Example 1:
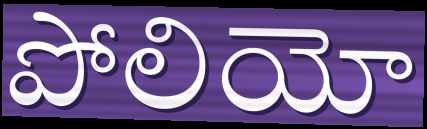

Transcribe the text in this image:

పోలియో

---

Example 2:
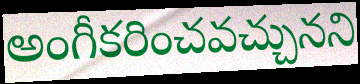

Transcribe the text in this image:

అంగీకరించవచ్చునని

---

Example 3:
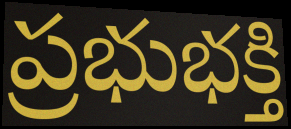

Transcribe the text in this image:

ప్రభుభక్తి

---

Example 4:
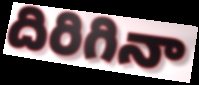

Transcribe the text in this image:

దిరిగినా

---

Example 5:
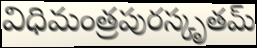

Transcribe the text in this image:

విధిమంత్రపురస్కృతమ్